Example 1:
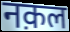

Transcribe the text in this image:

नक़ल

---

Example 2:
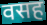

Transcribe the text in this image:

वसह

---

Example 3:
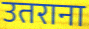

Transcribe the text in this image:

उतराना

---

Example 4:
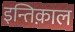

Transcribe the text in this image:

इन्तिक़ाल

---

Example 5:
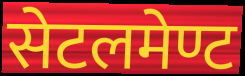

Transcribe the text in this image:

सेटलमेण्ट